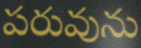
పరువును